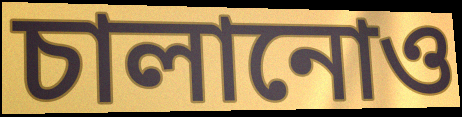
চালানোও